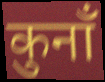
कुनाँ